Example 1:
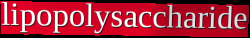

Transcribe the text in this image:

lipopolysaccharide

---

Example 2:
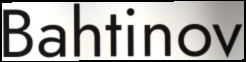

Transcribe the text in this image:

Bahtinov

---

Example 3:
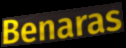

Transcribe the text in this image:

Benaras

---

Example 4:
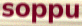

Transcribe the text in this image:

soppu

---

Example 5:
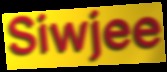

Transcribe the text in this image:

Siwjee